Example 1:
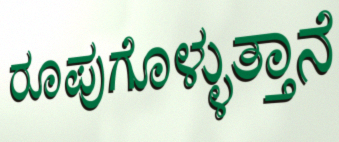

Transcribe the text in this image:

ರೂಪುಗೊಳ್ಳುತ್ತಾನೆ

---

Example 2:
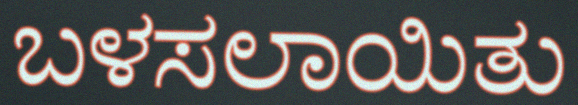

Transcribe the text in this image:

ಬಳಸಲಾಯಿತು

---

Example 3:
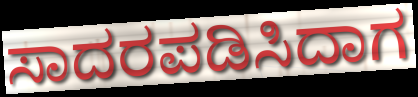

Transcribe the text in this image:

ಸಾದರಪಡಿಸಿದಾಗ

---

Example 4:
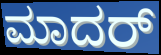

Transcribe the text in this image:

ಮಾದರ್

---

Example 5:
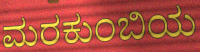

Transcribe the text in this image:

ಮರಕುಂಬಿಯ